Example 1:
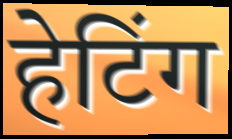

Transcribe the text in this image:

हेटिंग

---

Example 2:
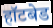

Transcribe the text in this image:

हॉटबेड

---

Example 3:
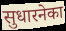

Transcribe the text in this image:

सुधारनेका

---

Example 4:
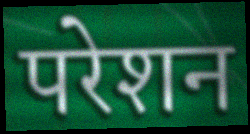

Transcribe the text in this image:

परेशन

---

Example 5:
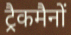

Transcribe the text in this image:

ट्रैकमैनों